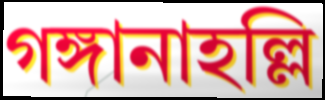
গঙ্গানাহল্লি